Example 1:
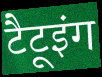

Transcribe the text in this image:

टैटूइंग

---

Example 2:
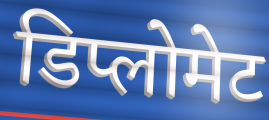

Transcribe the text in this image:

डिप्लोमेट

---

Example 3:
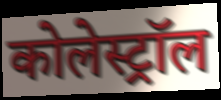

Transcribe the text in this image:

कोलेस्ट्रॉल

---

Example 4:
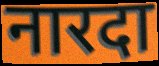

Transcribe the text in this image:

नारदा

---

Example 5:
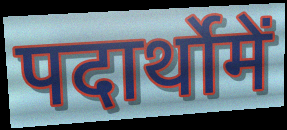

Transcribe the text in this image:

पदार्थोमें